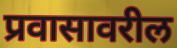
प्रवासावरील